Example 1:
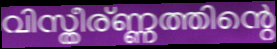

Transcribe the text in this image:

വിസ്തീര്ണ്ണത്തിന്റെ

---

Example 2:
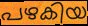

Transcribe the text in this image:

പഴകിയ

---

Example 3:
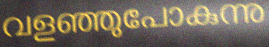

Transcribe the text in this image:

വളഞ്ഞുപോകുന്നു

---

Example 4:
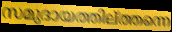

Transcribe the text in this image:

സമുദായത്തില്ത്തന്നെ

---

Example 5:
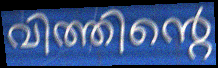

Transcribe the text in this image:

വിത്തിന്റെ